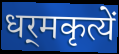
धर्मकृत्यें